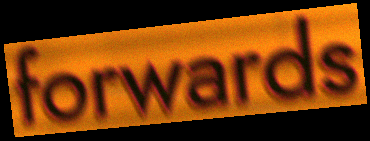
forwards